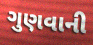
ગુણવાની